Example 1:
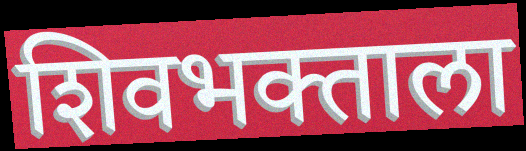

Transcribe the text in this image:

शिवभक्ताला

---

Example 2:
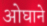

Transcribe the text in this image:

ओघाने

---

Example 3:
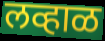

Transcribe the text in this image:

लव्हाळ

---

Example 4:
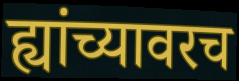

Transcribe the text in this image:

ह्यांच्यावरच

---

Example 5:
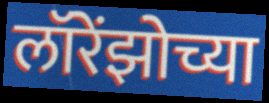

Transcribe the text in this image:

लॉरेंझोच्या